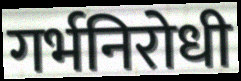
गर्भनिरोधी